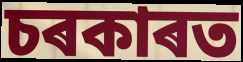
চৰকাৰত